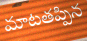
మాటతప్పిన